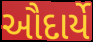
ઔદાર્યે